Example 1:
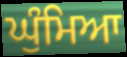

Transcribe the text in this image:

ਘੁੰਮਿਆ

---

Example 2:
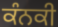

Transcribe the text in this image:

ਕੰਨਕੀ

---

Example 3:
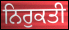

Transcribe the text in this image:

ਨਿਰੁਕਤੀ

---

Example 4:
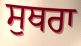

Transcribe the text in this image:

ਸੁਥਰਾ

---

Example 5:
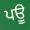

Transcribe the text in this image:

ਪਊ